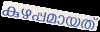
കുഴപ്പമായത്